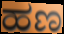
ಹಣ